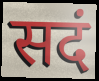
सदं